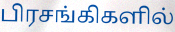
பிரசங்கிகளில்